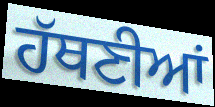
ਹੱਥਣੀਆਂ